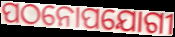
ପଠନୋପଯୋଗୀ